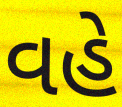
વહે